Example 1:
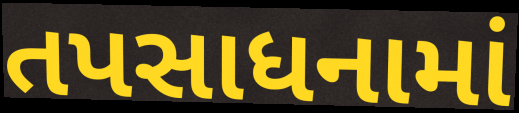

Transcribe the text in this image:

તપસાધનામાં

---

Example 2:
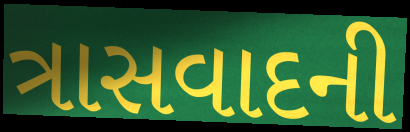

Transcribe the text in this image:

ત્રાસવાદની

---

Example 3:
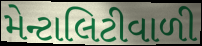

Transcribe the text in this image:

મેન્ટાલિટીવાળી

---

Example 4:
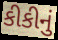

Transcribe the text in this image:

કીકીનું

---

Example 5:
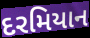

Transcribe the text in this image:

દરમિયાન